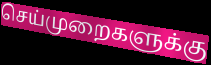
செய்முறைகளுக்கு